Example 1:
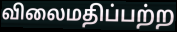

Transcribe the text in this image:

விலைமதிப்பற்ற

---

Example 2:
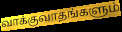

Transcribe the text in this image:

வாக்குவாதங்களும்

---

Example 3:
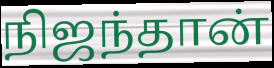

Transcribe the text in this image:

நிஜந்தான்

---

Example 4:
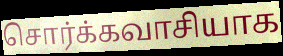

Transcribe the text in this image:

சொர்க்கவாசியாக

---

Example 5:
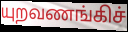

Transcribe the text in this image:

யுறவணங்கிச்